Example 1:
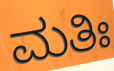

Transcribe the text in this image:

ಮತಿಃ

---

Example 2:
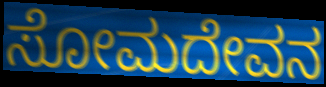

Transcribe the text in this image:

ಸೋಮದೇವನ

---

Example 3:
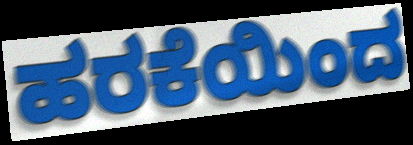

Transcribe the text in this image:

ಹರಕೆಯಿಂದ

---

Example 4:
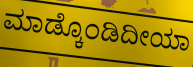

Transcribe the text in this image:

ಮಾಡ್ಕೊಂಡಿದೀಯಾ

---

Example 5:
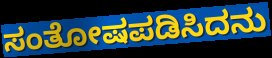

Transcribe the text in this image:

ಸಂತೋಷಪಡಿಸಿದನು